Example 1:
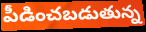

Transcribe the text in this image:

పీడించబడుతున్న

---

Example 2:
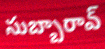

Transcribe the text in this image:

సుబ్బారావ్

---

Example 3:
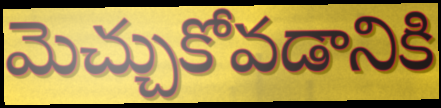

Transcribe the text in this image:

మెచ్చుకోవడానికి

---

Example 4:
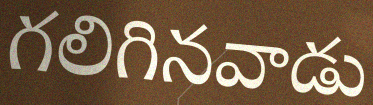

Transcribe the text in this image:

గలిగినవాడు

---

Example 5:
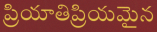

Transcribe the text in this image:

ప్రియాతిప్రియమైన